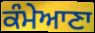
ਕੰਮੇਆਣਾ